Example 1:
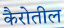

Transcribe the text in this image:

कैरोतील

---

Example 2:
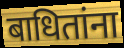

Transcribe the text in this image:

बाधितांना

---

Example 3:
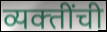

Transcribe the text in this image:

व्यक्‍तींची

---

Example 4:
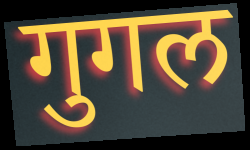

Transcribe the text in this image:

गुगल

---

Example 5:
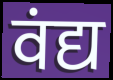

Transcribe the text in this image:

वंद्य